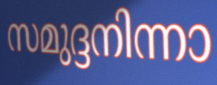
സമുദ്ദനിന്നാ